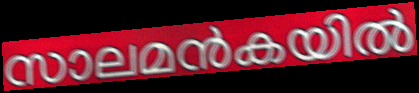
സാലമൻകയിൽ